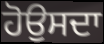
ਹੋਉਸਦਾ